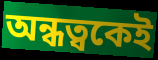
অন্ধত্বকেই